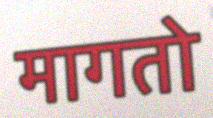
मागतो